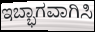
ಇಬ್ಭಾಗವಾಗಿಸಿ